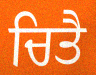
ਚਿਤੈ